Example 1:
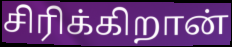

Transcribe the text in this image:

சிரிக்கிறான்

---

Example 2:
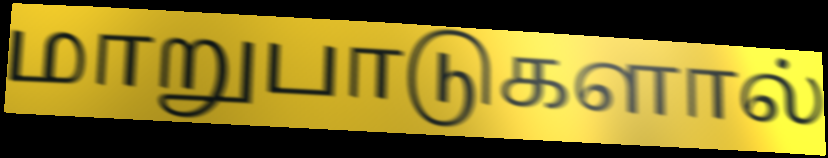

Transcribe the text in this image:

மாறுபாடுகளால்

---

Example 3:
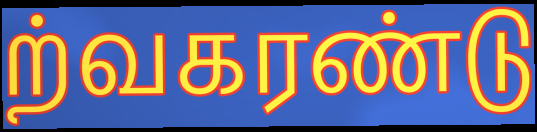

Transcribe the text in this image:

ற்வகரண்டு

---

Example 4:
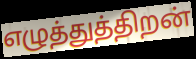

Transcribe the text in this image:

எழுத்துத்திறன்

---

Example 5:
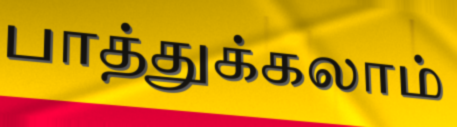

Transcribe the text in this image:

பாத்துக்கலாம்